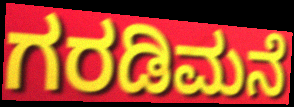
ಗರಡಿಮನೆ